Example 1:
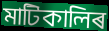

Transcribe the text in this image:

মাটিকালিৰ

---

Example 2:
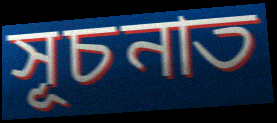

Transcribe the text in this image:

সূচনাত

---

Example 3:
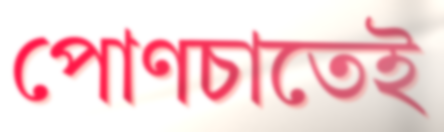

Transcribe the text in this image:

পোণচাতেই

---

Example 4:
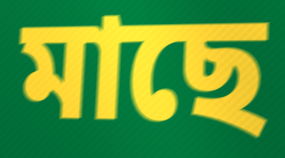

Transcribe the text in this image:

মাছে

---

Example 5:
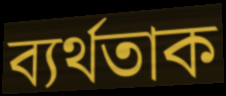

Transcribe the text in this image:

ব্যৰ্থতাক